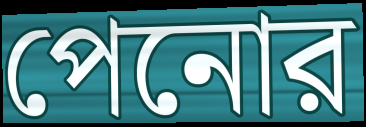
পেনোর